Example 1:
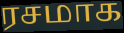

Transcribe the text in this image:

ரசமாக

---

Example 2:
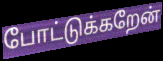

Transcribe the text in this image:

போட்டுக்கறேன்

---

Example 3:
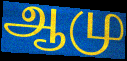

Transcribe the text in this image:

ஆமு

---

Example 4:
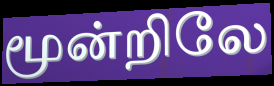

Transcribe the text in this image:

மூன்றிலே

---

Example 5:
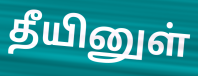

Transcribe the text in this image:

தீயினுள்